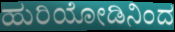
ಹುರಿಯೋಡಿನಿಂದ